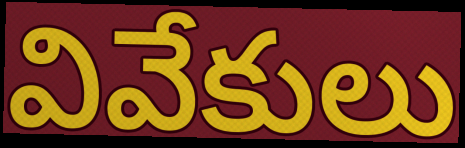
వివేకులు